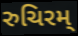
રુચિરમ્